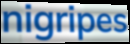
nigripes